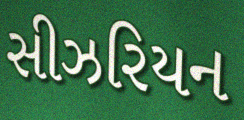
સીઝરિયન